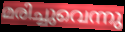
മരിച്ചുവെന്നു